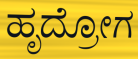
ಹೃದ್ರೋಗ